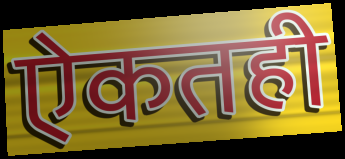
ऐकतही